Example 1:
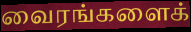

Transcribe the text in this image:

வைரங்களைக்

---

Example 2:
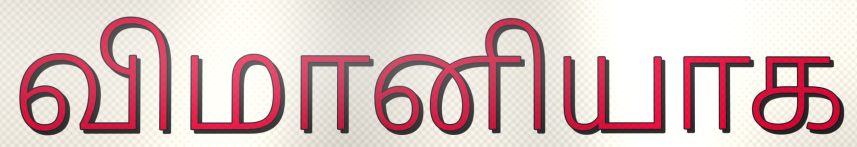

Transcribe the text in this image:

விமானியாக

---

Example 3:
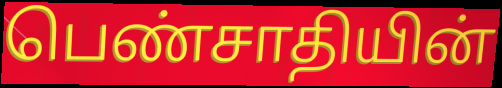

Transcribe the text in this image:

பெண்சாதியின்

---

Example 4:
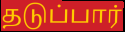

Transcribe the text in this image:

தடுப்பார்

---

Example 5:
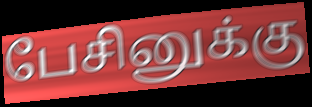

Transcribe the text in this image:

பேசினுக்கு